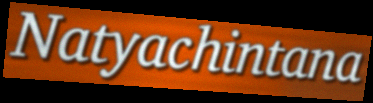
Natyachintana